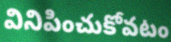
వినిపించుకోవటం